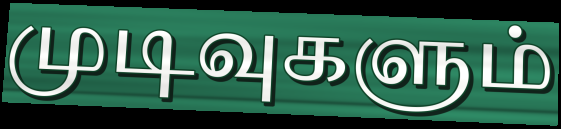
முடிவுகளும்